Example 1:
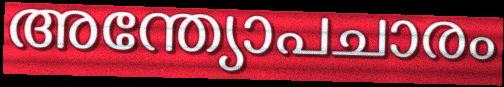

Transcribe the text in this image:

അന്ത്യോപചാരം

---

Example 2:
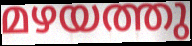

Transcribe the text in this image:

മഴയത്തു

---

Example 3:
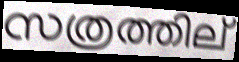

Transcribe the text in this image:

സത്രത്തില്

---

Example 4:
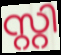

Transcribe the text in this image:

സ്റ്റി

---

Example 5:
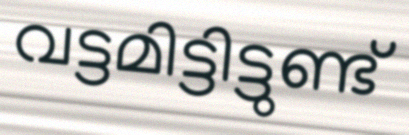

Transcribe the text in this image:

വട്ടമിട്ടിട്ടുണ്ട്